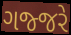
ગજ્જરે